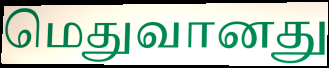
மெதுவானது